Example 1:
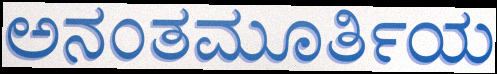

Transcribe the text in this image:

ಅನಂತಮೂರ್ತಿಯ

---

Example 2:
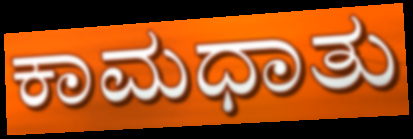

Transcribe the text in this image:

ಕಾಮಧಾತು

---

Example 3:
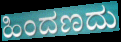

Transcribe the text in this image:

ಹಿಂದಣದು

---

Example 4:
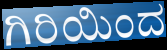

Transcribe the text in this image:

ಗಿರಿಯಿಂದ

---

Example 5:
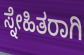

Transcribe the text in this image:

ಸ್ನೇಹಿತರಾಗಿ